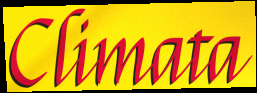
Climata